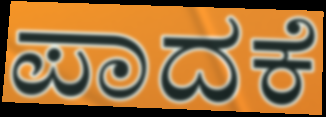
ಪಾದಕೆ